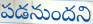
పడనుందని